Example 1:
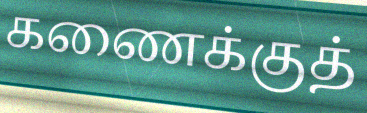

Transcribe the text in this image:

கணைக்குத்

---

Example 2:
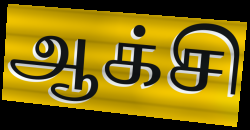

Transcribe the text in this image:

ஆக்சி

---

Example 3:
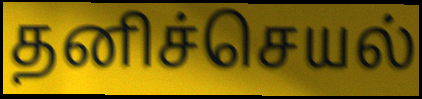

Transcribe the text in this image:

தனிச்செயல்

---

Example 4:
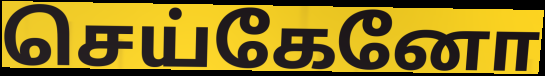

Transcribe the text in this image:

செய்கேனோ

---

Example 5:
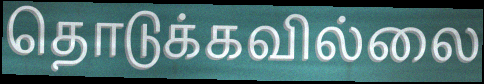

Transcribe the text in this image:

தொடுக்கவில்லை